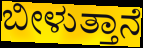
ಬೀಳುತ್ತಾನೆ